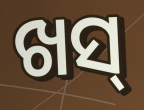
ଖସ୍